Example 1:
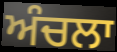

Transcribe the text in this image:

ਅੰਚਲਾ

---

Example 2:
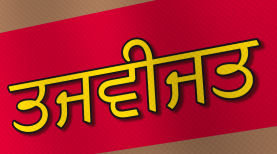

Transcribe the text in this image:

ਤਜਵੀਜਤ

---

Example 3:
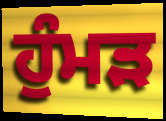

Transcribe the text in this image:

ਹੁੰਮੜ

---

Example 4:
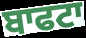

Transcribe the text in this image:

ਬਾਫਟਾ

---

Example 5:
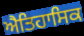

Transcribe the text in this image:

ਐਤਿਹਾਸਿਕ